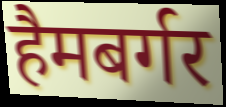
हैमबर्गर